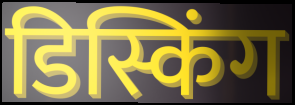
डिस्किंग